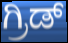
ಗ್ರಿಡ್